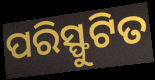
ପରିସ୍ଫୁଟିତ